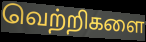
வெற்றிகளை